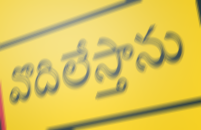
వొదిలేస్తాను